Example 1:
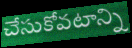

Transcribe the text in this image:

చేసుకోవటాన్ని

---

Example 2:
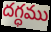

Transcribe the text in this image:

దగ్ధము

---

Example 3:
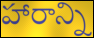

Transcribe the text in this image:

హారాన్ని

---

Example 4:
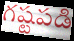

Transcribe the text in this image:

గష్టపడి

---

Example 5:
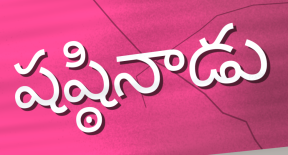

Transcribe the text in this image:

షష్ఠినాడు